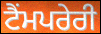
ਟੈਂਮਪਰੇਰੀ